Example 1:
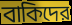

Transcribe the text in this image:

বাকিদের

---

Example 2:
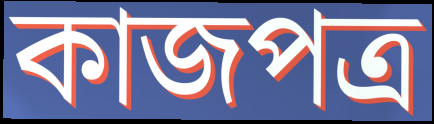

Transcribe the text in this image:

কাজপত্র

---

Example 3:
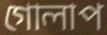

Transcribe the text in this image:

গোলাপ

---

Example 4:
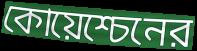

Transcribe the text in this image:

কোয়েশ্চেনের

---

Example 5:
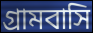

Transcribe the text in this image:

গ্রামবাসি